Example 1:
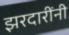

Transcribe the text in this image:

झरदारींनी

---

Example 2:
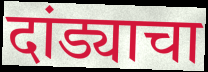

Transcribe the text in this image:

दांड्याचा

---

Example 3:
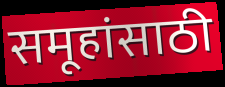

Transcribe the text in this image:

समूहांसाठी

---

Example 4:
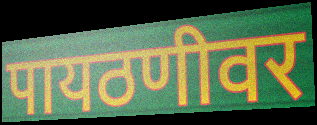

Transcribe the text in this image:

पायठणीवर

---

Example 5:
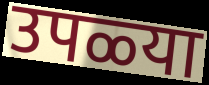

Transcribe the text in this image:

उपळ्या